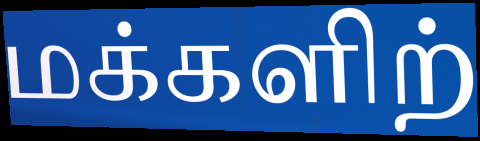
மக்களிற்